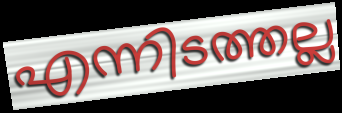
എന്നിടത്തല്ല